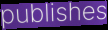
publishes